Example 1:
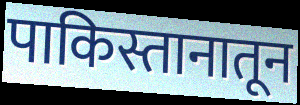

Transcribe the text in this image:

पाकिस्तानातून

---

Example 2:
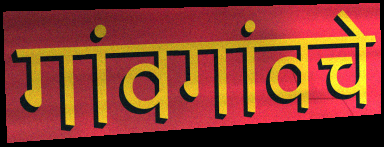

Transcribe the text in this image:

गांवगांवचे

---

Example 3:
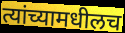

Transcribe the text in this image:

त्यांच्यामधीलच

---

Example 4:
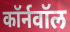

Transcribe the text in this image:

कॉर्नवॉल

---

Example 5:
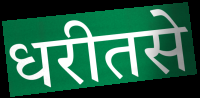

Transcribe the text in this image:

धरीतसे